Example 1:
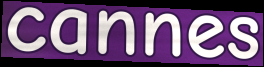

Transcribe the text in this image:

cannes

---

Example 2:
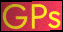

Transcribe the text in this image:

GPs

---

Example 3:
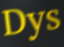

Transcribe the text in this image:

Dys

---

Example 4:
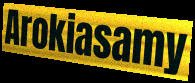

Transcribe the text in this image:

Arokiasamy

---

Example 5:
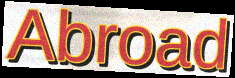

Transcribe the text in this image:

Abroad